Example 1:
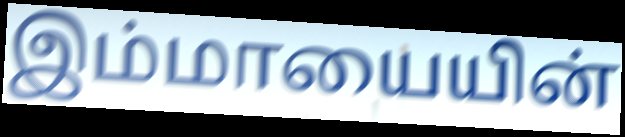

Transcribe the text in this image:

இம்மாயையின்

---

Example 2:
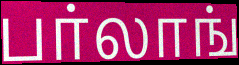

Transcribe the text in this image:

பர்லாங்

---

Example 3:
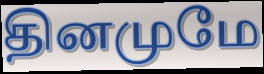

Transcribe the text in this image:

தினமுமே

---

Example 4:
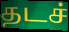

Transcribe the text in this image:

தடச்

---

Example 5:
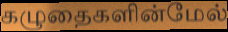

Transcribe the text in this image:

கழுதைகளின்மேல்